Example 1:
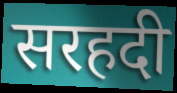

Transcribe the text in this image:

सरहदी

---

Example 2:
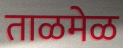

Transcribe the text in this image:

ताळमेळ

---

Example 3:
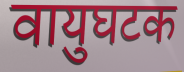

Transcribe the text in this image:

वायुघटक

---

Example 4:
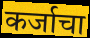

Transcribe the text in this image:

कर्जाचा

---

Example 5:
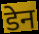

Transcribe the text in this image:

डेन